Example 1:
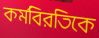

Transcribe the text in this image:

কর্মবিরতিকে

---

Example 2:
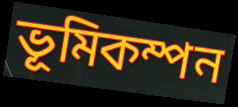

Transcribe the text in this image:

ভূমিকম্পন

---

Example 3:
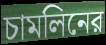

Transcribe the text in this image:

চামলিনের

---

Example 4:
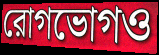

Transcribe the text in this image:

রোগভোগও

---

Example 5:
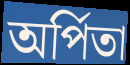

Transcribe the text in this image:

অর্পিতা